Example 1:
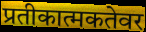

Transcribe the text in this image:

प्रतीकात्मकतेवर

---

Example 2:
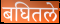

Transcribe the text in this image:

बघितले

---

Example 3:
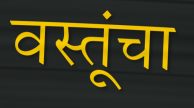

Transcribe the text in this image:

वस्तूंचा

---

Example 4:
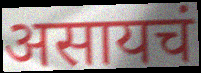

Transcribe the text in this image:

असायचं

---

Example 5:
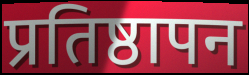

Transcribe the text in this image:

प्रतिष्ठापन